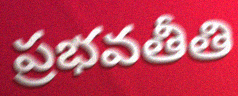
ప్రభవతీతి